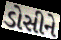
ડોસીને